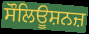
ਸੌਲਿਊਸ਼ਨਜ਼